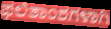
ಫಲಿತಾಂಶಗಳಾಗಿ